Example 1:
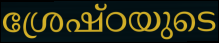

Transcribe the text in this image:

ശ്രേഷ്ഠയുടെ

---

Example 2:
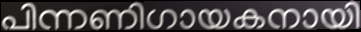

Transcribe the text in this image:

പിന്നണിഗായകനായി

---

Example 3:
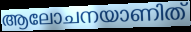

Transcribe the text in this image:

ആലോചനയാണിത്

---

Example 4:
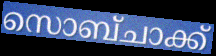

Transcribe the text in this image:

സൊബ്ചാക്ക്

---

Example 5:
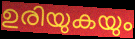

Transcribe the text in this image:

ഉരിയുകയും